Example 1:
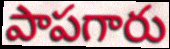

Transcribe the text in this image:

పాపగారు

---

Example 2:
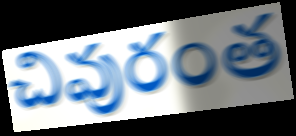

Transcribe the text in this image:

చివురంత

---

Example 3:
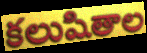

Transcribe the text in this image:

కలుషితాల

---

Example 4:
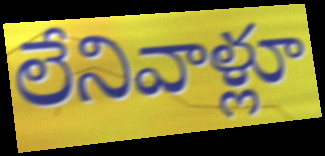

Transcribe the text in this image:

లేనివాళ్లూ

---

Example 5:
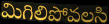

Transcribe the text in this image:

మిగిలిపోవలసి